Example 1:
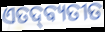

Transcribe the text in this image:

ଏତଦ୍‍ବ୍ୟତୀତ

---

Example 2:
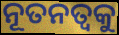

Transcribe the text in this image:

ନୂତନତ୍ବକୁ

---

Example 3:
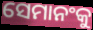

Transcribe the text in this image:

ସେମାନଂକୁ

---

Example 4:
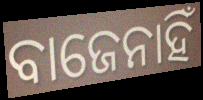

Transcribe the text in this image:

ବାଜେନାହିଁ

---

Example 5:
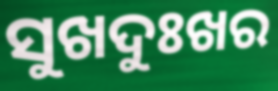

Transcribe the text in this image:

ସୁଖଦୁଃଖର